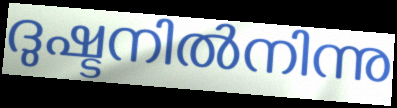
ദുഷ്ടനിൽനിന്നു